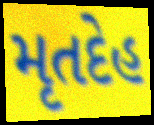
મૃતદેહ